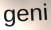
geni